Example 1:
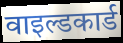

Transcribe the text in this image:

वाइल्डकार्ड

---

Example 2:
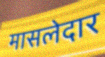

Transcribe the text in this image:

मासलेदार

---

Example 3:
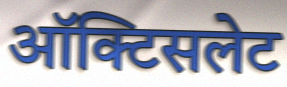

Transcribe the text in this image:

ऑक्टिसलेट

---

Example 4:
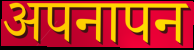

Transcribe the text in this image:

अपनापन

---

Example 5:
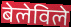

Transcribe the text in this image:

बेलेविले